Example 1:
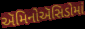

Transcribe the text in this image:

ઍમિનોઍસિડોમાં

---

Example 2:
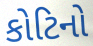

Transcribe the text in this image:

કોટિનો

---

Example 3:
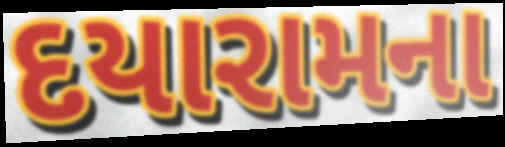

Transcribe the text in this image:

દયારામના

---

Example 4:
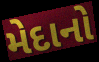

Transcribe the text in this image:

મેદાનો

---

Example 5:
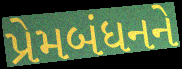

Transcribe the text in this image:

પ્રેમબંધનને